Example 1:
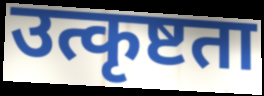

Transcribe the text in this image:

उत्कृष्टता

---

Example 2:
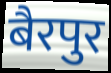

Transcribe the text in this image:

बैरपुर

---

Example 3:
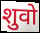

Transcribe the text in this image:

शुवो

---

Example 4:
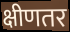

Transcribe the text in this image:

क्षीणतर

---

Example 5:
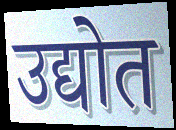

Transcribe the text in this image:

उद्योत